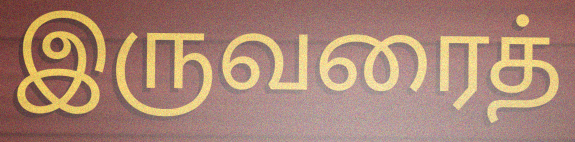
இருவரைத்